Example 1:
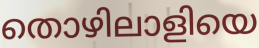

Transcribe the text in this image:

തൊഴിലാളിയെ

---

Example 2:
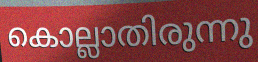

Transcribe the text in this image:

കൊല്ലാതിരുന്നു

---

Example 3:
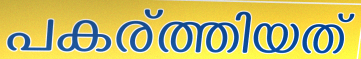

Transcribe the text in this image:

പകര്ത്തിയത്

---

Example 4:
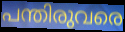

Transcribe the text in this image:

പന്തിരുവരെ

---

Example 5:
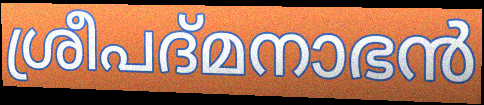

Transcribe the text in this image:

ശ്രീപദ്മനാഭൻ